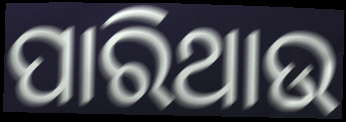
ପାରିଥାଉ